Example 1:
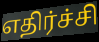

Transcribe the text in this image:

எதிர்ச்சி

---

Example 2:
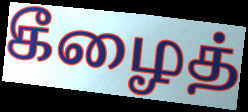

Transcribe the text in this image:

கீழைத்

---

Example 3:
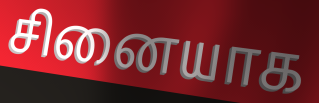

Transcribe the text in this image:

சினையாக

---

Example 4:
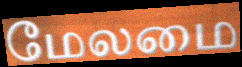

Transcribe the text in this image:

மேலமை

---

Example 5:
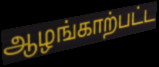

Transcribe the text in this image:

ஆழங்காற்பட்ட